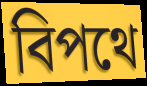
বিপথে